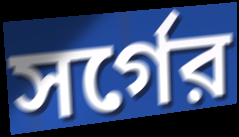
সর্গের